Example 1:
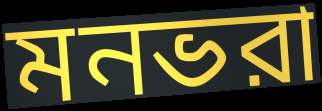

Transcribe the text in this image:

মনভরা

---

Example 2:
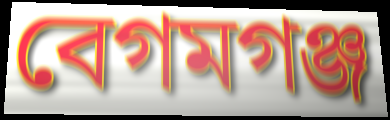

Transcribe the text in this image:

বেগমগঞ্জ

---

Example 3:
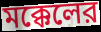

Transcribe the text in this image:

মক্কেলের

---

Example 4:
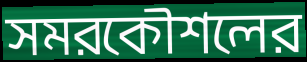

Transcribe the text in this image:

সমরকৌশলের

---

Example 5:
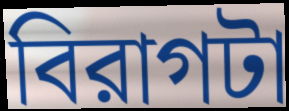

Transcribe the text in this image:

বিরাগটা